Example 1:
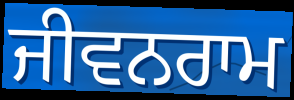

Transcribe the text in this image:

ਜੀਵਨਰਾਮ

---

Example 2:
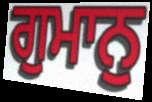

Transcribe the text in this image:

ਗੁਮਾਨੁ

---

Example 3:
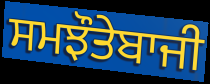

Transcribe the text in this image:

ਸਮਝੌਤੇਬਾਜੀ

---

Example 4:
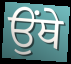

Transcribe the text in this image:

ਉੰਥੇ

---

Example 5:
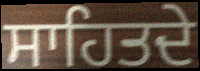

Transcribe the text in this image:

ਸਾਹਿਤਦੇ